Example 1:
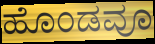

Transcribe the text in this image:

ಹೊಂಡವೂ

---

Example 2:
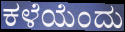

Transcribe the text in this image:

ಕಳೆಯೆಂದು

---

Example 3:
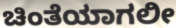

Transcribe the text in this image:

ಚಿಂತೆಯಾಗಲೀ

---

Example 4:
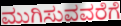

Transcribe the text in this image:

ಮುಗಿಸುವವರೆಗೆ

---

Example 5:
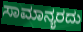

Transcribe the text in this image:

ಸಾಮಾನ್ಯರದು